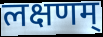
लक्षणम्